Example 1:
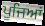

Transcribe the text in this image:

ਪੂਜਿਆਂ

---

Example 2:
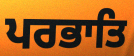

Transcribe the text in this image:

ਪਰਭਾਤਿ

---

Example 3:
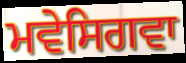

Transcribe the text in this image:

ਮਵੇਸਿਗਵਾ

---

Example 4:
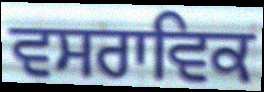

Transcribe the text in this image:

ਵਸਰਾਵਿਕ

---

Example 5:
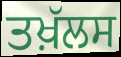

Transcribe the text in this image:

ਤਖ਼ੱਲਸ